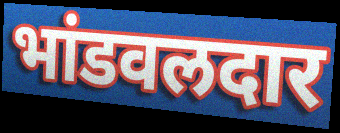
भांडवलदार